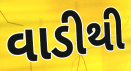
વાડીથી